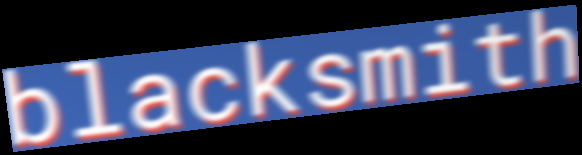
blacksmith